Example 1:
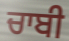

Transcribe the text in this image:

ਚਾਬੀ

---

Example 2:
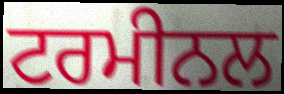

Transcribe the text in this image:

ਟਰਮੀਨਲ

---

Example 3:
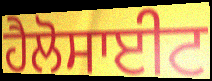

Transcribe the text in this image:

ਹੈਲੋਸਾਈਟ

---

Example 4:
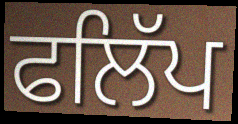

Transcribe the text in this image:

ਫਲਿੱਪ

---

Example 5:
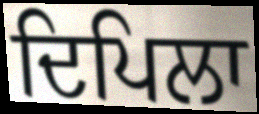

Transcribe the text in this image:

ਦਿਪਿਲਾ